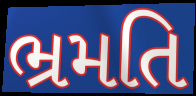
ભ્રમતિ